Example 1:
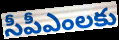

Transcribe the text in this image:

సీపీఎంలకు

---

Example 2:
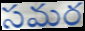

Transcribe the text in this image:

సమర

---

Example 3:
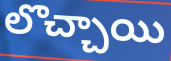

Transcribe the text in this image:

లొచ్చాయి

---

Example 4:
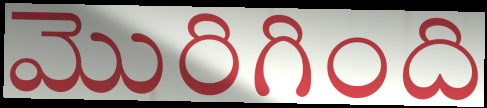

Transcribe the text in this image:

మొరిగింది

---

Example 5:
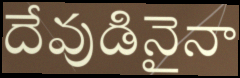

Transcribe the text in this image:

దేవుడినైనా